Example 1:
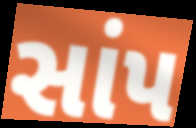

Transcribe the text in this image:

સાંપ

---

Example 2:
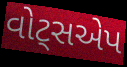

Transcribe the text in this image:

વોટ્સએપ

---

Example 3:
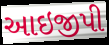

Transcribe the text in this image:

આઇજીપી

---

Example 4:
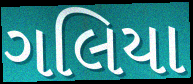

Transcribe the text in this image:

ગલિયા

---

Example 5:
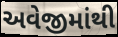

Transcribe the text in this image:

અવેજીમાંથી